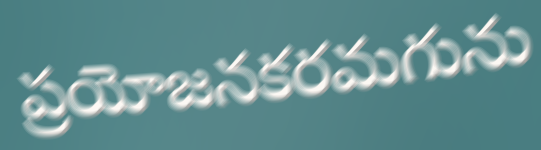
ప్రయోజనకరమగును